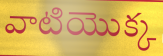
వాటియొక్క